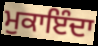
ਮੁਕਾਇੰਦਾ